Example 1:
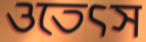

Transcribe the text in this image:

ওতেৎস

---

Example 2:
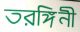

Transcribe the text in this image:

তরঙ্গিনী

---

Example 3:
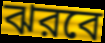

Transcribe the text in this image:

ঝরবে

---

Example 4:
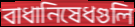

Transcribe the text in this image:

বাধানিষেধগুলি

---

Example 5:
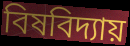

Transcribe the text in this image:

বিষবিদ্যায়